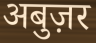
अबुज़र